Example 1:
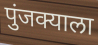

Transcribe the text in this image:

पुंजक्याला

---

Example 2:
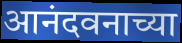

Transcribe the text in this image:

आनंदवनाच्या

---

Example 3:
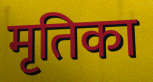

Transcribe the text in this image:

मृतिका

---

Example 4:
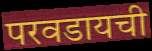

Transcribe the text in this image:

परवडायची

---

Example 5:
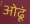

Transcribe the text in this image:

ओढूं